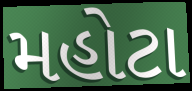
મહોટા